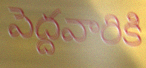
పెద్దవారికి